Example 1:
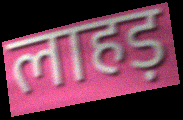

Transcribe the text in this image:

लाहड़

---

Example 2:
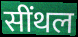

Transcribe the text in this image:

सींथल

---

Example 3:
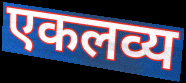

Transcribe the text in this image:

एकलव्य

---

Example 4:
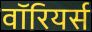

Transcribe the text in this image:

वॉरियर्स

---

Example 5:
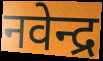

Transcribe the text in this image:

नवेन्द्र